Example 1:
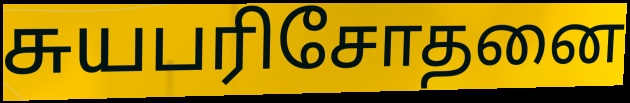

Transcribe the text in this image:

சுயபரிசோதனை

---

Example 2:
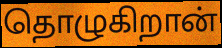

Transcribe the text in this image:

தொழுகிறான்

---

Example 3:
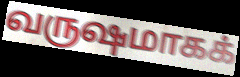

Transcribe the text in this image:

வருஷமாகக்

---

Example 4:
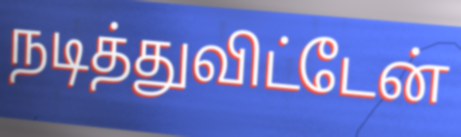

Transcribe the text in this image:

நடித்துவிட்டேன்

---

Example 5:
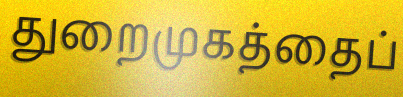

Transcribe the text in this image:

துறைமுகத்தைப்